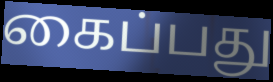
கைப்பது